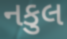
નકુલ